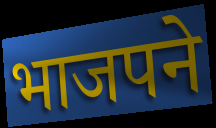
भाजपने